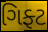
ગિફ્ટ